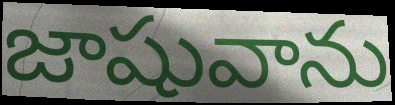
జాషువాను